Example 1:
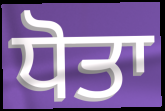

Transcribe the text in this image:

ਧੋਤਾ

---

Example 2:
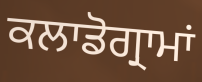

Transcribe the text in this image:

ਕਲਾਡੋਗ੍ਰਾਮਾਂ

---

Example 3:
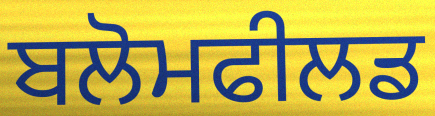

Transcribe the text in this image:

ਬਲੋਮਫੀਲਡ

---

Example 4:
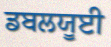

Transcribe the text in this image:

ਡਬਲਯੂਈ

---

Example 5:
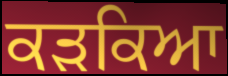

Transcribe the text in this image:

ਕੜਕਿਆ